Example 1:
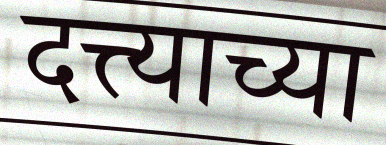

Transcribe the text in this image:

दत्त्याच्या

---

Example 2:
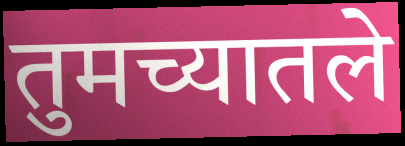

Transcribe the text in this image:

तुमच्यातले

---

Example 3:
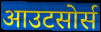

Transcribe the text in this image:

आउटसोर्स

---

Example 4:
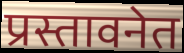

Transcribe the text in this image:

प्रस्तावनेत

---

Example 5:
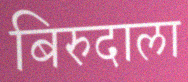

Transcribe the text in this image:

बिरुदाला